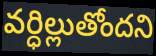
వర్ధిల్లుతోందని